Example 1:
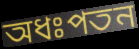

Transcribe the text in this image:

অধঃপতন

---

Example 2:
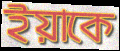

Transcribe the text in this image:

ইয়াকে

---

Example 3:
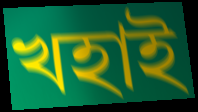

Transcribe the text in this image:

খহাই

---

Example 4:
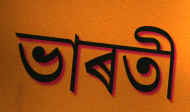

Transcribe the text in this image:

ভাৰতী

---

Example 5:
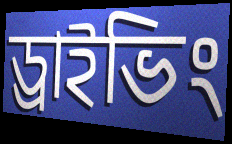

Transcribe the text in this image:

ড্ৰাইভিং